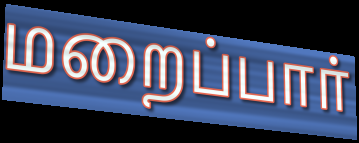
மறைப்பார்